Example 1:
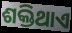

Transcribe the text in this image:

ଶକ୍ତିଥାଏ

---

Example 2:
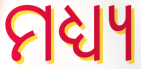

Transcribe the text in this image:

ମଧ୍ୟ୍ୟ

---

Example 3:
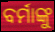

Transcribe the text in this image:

ବର୍ମାଙ୍କୁ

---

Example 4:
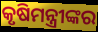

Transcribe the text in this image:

କୃଷିମନ୍ତ୍ରୀଙ୍କର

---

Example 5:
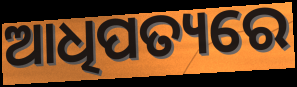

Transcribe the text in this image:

ଆଧିପତ୍ୟରେ